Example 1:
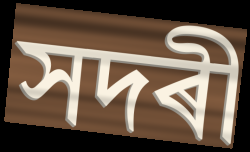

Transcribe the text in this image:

সদৰী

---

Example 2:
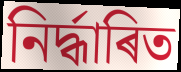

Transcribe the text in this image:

নিৰ্দ্ধাৰিত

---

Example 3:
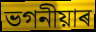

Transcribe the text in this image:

ভগনীয়াৰ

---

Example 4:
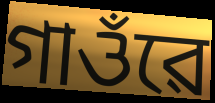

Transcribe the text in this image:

গাওঁৱে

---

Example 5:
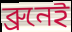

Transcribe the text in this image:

ব্ৰুনেই